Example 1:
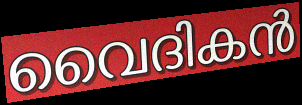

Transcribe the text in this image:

വൈദികൻ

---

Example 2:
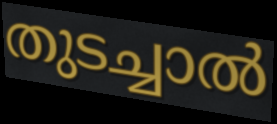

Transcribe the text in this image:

തുടച്ചാൽ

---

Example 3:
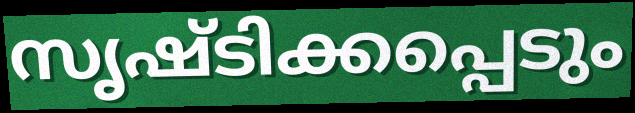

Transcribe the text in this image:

സൃഷ്ടിക്കപ്പെടും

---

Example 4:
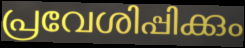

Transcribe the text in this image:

പ്രവേശിപ്പിക്കും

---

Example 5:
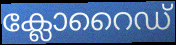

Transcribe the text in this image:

ക്ലോറൈഡ്